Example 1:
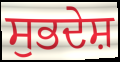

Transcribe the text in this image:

ਸੁਭਦੇਸ਼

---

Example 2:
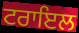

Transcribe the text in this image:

ਟਰਾਇਲ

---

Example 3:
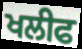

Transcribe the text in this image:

ਖਲੀਫ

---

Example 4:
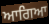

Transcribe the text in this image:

ਆਗਿਆ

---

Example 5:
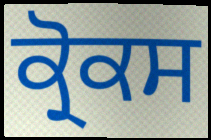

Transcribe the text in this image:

ਕ੍ਰੋਕਸ